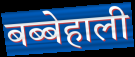
बब्बेहाली